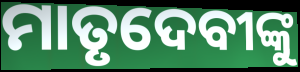
ମାତୃଦେବୀଙ୍କୁ